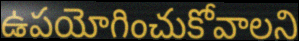
ఉపయోగించుకోవాలని